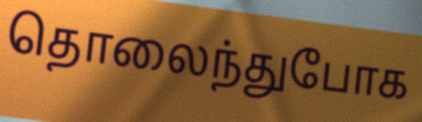
தொலைந்துபோக